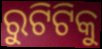
ରୁଟିଟିକୁ